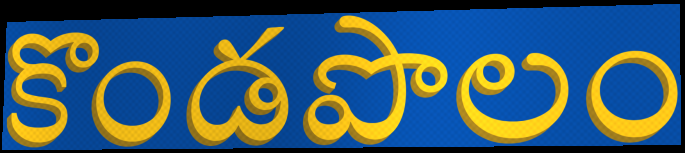
కొండపొలం